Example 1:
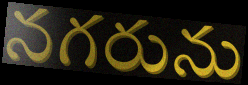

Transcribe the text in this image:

నగరును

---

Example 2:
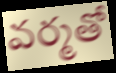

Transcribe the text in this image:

వర్మతో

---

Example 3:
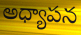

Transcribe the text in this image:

అధ్యాపన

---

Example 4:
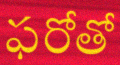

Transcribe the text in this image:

ఫరోతో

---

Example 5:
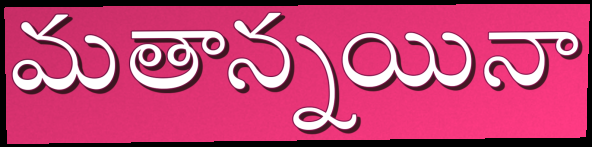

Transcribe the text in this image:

మతాన్నయినా